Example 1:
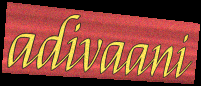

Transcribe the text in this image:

adivaani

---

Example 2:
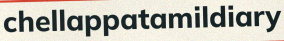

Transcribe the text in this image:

chellappatamildiary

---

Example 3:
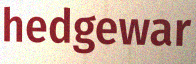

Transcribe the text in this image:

hedgewar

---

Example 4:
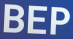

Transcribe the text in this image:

BEP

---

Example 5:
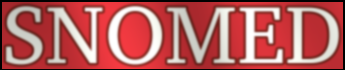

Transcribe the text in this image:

SNOMED